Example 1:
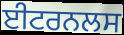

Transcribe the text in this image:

ਈਟਰਨਲਸ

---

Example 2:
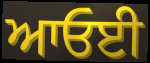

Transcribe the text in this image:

ਆਓਈ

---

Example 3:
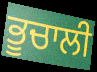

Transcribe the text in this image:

ਭੂਚਾਲੀ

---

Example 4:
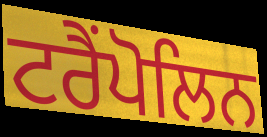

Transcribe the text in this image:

ਟਰੈਂਪੋਲਿਨ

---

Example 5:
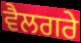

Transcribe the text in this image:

ਵੈਲਗਰੇ